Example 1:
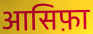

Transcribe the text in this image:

आसिफ़ा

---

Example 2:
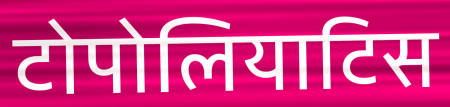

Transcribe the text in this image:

टोपोलियाटिस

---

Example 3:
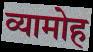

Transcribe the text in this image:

व्यामोह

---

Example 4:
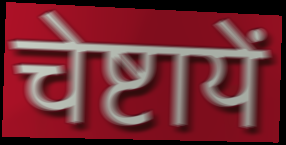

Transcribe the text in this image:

चेष्टायें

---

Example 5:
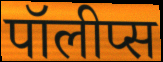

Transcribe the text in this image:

पॉलीप्स